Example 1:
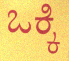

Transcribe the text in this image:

ಒಕ್ಕಿ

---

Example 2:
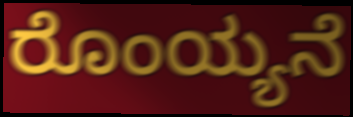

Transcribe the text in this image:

ರೊಂಯ್ಯನೆ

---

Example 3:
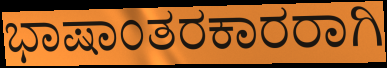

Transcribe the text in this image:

ಭಾಷಾಂತರಕಾರರಾಗಿ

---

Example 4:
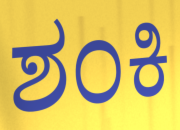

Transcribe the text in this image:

ಶಂಕಿ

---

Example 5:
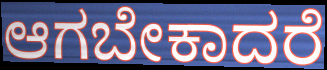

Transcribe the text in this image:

ಆಗಬೇಕಾದರೆ